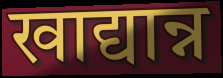
खाद्यान्न